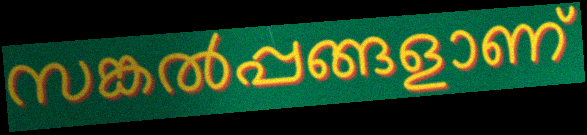
സങ്കൽപ്പങ്ങളാണ്